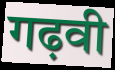
गढ़वी